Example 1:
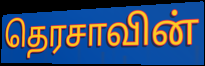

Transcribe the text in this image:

தெரசாவின்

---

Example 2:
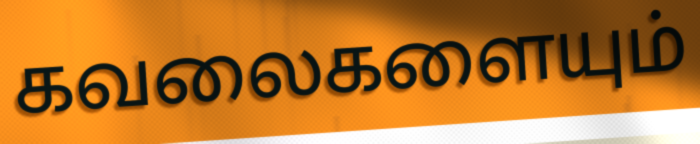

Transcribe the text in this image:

கவலைகளையும்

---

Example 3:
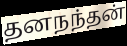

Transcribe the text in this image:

தனநந்தன்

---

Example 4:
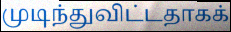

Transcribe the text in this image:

முடிந்துவிட்டதாகக்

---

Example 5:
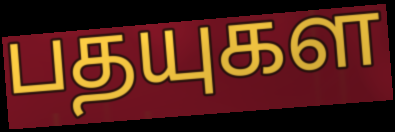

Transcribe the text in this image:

பதயுகள